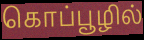
கொப்பூழில்